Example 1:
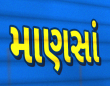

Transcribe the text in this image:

માણસાં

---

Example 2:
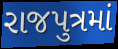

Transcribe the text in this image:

રાજપુત્રમાં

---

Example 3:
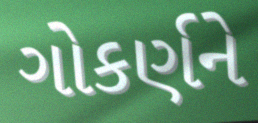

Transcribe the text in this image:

ગોકર્ણને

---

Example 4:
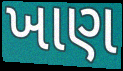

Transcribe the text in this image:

ખાણ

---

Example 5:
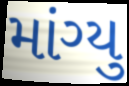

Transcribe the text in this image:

માંગ્યુ